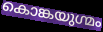
കൊങ്കയുഗ്മം